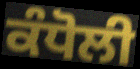
ਕੰਧੋਲੀ